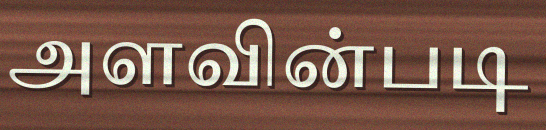
அளவின்படி